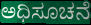
ಅಧಿಸೂಚನೆ